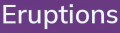
Eruptions